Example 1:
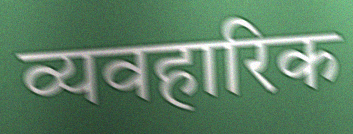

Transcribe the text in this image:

व्यवहारिक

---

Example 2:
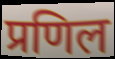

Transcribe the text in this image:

प्रणिल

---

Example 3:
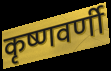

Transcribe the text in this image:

कृष्णवर्णी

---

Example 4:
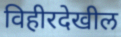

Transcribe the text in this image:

विहीरदेखील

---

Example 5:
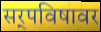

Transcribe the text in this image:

सर्पविषावर